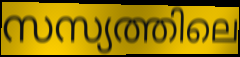
സസ്യത്തിലെ